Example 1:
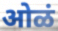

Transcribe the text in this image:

ओळं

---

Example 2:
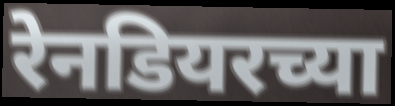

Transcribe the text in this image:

रेनडियरच्या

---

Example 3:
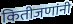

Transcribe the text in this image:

कितीजणांनी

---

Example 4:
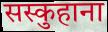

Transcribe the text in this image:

सस्कुहाना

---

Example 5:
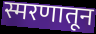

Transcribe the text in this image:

स्मरणातून